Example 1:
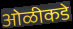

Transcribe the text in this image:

ओळीकडे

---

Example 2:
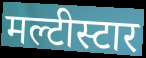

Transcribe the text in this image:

मल्टीस्टार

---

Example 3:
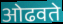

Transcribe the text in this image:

ओढवते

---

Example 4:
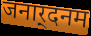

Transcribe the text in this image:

जनार्दनम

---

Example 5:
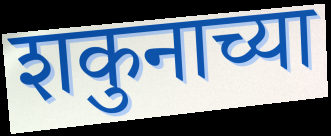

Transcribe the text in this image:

शकुनाच्या